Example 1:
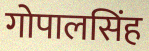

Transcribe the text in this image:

गोपालसिंह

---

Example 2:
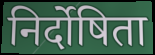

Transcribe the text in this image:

निर्दोषिता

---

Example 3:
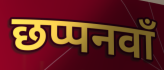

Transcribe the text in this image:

छप्पनवाँ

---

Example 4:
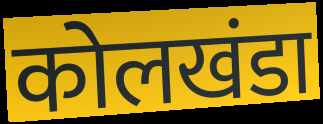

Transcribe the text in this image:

कोलखंडा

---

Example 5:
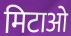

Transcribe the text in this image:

मिटाओ